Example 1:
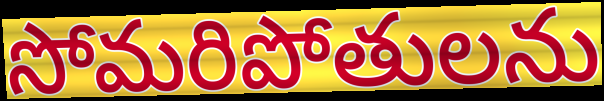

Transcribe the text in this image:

సోమరిపోతులను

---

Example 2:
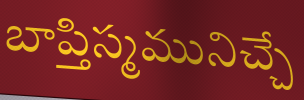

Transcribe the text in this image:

బాప్తిస్మమునిచ్చే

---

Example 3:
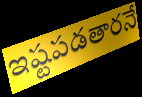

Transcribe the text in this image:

ఇష్టపడతారనే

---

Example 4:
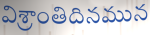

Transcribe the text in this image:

విశ్రాంతిదినమున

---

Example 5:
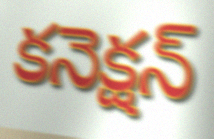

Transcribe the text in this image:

కనెక్షన్